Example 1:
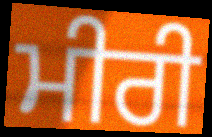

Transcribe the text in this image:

ਮੀਰੀ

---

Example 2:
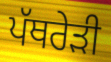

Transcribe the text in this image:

ਪੱਥਰੇੜੀ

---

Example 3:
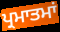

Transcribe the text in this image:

ਪ੍ਰਮਾਤਮਾਂ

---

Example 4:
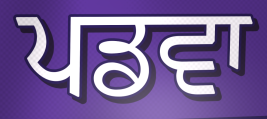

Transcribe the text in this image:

ਪਡਵਾ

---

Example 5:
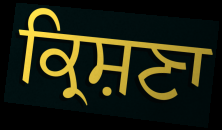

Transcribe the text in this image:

ਕ੍ਰਿਸ਼ਣਾ